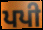
ਪਪੀ